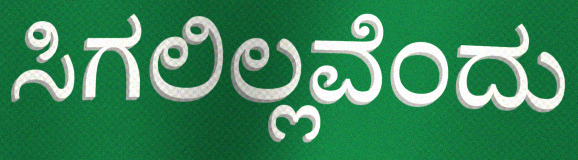
ಸಿಗಲಿಲ್ಲವೆಂದು